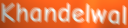
Khandelwal